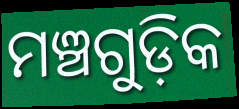
ମଞ୍ଚଗୁଡ଼ିକ